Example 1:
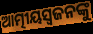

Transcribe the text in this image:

ଆତ୍ମୀୟସ୍ୱଜନଙ୍କୁ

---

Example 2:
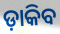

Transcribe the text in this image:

ଡ଼ାକିବ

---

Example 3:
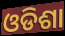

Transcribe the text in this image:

ଓଡିଶା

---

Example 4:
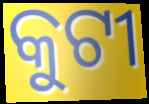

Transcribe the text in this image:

କୁଟୀ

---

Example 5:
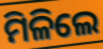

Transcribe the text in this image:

ମିଳିଲେ